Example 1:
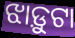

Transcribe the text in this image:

ଝାଡ଼ୁଟା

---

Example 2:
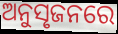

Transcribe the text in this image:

ଅନୁସୃଜନରେ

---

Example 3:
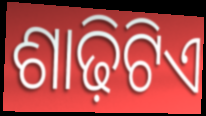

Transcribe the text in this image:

ଶାଢ଼ିଟିଏ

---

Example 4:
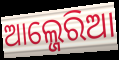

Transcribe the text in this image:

ଆଲ୍ଜେରିଆ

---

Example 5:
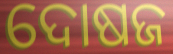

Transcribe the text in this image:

ଦୋଷଜ